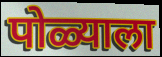
पोळ्याला